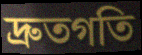
দ্রুতগতি